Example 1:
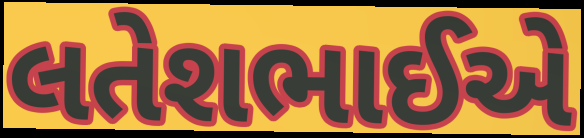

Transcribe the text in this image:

લતેશભાઈએ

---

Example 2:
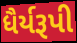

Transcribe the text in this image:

ધૈર્યરૂપી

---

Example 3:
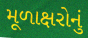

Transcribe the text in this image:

મૂળાક્ષરોનું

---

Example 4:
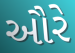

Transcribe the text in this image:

ઔરે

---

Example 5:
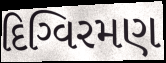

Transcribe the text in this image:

દિગ્વિરમણ